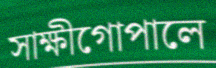
সাক্ষীগোপালে